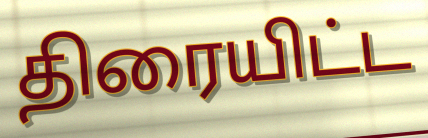
திரையிட்ட